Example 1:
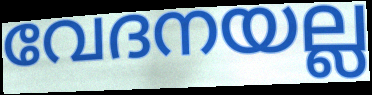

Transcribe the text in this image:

വേദനയല്ല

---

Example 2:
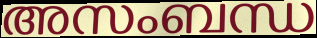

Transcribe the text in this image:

അസംബന്ധ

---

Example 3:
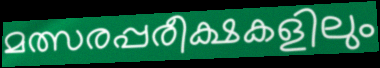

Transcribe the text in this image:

മത്സരപ്പരീക്ഷകളിലും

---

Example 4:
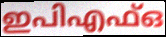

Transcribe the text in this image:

ഇപിഎഫ്ഒ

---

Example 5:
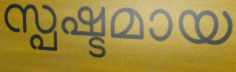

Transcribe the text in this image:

സ്പഷ്ടമായ